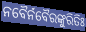
ନବୈର୍ନବୈରଙ୍କୁରିତିଃ